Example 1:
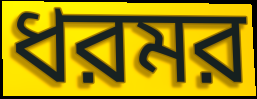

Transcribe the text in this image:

ধরমর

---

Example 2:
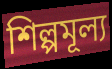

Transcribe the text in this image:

শিল্পমূল্য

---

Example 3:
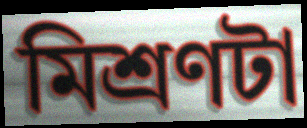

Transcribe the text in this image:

মিশ্রণটা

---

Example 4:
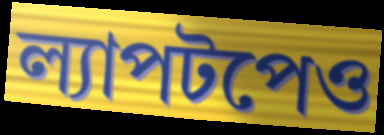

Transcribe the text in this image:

ল্যাপটপেও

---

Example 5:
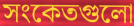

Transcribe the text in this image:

সংকেতগুলো